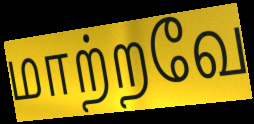
மாற்றவே